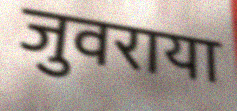
जुवराया